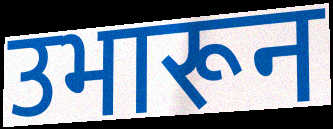
उभारून